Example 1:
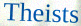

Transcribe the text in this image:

Theists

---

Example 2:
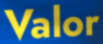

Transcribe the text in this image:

Valor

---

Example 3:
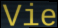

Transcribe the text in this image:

Vie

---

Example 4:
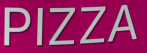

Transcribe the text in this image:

PIZZA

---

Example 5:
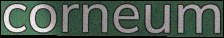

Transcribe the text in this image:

corneum